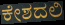
ಕೇಶದಲಿ